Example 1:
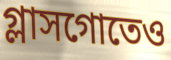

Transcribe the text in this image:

গ্লাসগোতেও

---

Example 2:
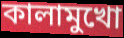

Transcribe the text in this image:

কালামুখো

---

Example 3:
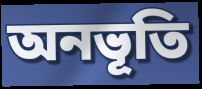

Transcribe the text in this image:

অনভূতি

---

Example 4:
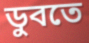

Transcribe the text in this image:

ডুবতে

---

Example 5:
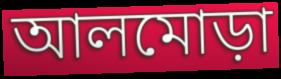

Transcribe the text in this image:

আলমোড়া